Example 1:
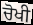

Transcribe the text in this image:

ਚੋਖੀ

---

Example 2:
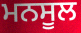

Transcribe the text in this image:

ਮਨਸੂਲ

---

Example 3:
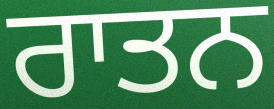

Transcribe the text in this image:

ਰਾਤਨ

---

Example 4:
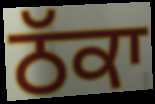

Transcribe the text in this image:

ਠੱਕਾ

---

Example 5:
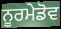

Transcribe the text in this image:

ਨੂਰਮੇਡੋਵ